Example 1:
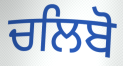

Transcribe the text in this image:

ਚਲਿਬੋ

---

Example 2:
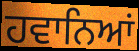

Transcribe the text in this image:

ਹਵਾਨਿਆਂ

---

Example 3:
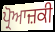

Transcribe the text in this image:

ਪ੍ਰੋਆਜ਼ਕੀ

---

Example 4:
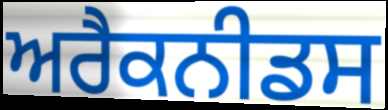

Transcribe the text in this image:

ਅਰੈਕਨੀਡਸ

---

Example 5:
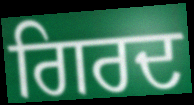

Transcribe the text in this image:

ਗਿਰਦ